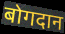
बोगदान